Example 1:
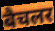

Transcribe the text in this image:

बैचलर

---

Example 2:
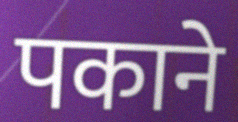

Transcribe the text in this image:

पकाने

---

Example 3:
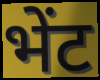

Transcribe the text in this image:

भेंट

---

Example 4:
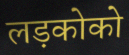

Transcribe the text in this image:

लड़कोको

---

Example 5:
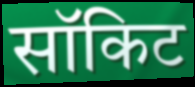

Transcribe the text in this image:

सॉकिट